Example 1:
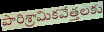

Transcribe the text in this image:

పారిశ్రామికవేత్తలకు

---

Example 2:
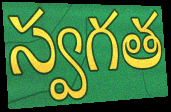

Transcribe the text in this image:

స్వగత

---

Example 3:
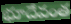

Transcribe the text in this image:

భూదేవంత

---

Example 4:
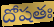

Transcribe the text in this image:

దోషతః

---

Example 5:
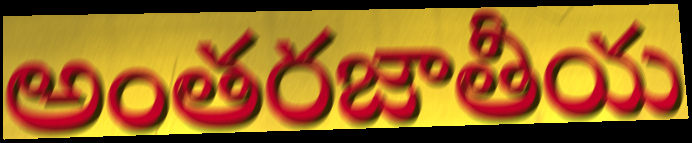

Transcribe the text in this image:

అంతరజాతీయ